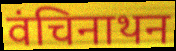
वंचिनाथन